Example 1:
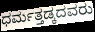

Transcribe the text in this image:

ಧರ್ಮತ್ತಡ್ಕದವರು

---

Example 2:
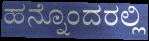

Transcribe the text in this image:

ಹನ್ನೊಂದರಲ್ಲಿ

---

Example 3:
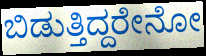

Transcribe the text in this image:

ಬಿಡುತ್ತಿದ್ದರೇನೋ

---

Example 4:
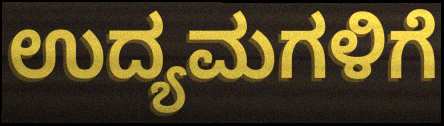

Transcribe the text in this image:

ಉದ್ಯಮಗಳಿಗೆ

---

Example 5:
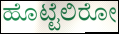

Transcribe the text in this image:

ಹೊಟ್ಟೆಲಿರೋ